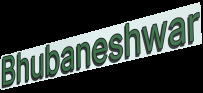
Bhubaneshwar